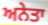
ਅਨੇਤਾ